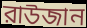
রাউজান